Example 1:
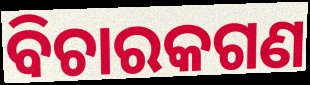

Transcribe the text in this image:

ବିଚାରକଗଣ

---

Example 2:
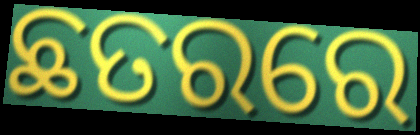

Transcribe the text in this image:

ଛତରରେ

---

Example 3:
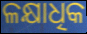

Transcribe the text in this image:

ଳକ୍ଷାଧିକ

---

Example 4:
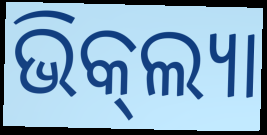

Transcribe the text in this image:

ଭିକ୍‌ଲ୍ୟା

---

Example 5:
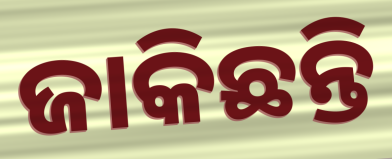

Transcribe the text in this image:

ଜାକିଛନ୍ତି